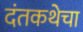
दंतकथेचा